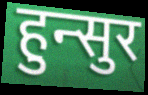
हुन्सुर